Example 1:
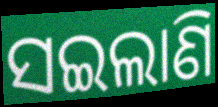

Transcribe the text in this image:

ସଇଲାଣି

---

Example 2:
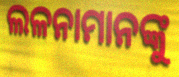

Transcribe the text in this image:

ଲଳନାମାନଙ୍କୁ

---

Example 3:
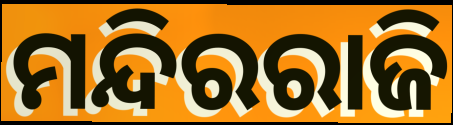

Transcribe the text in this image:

ମନ୍ଦିରରାଜି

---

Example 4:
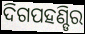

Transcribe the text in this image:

ଦିଗପହଣ୍ଡିର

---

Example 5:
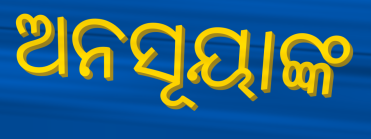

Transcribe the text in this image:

ଅନସୂୟାଙ୍କ